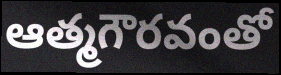
ఆత్మగౌరవంతో